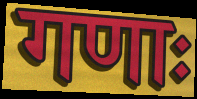
गणाः